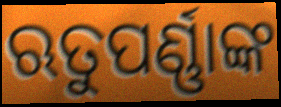
ଋତୁପର୍ଣ୍ଣାଙ୍କ